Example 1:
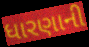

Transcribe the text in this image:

ધારણાની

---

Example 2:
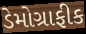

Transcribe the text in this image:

ડેમોગ્રાફીક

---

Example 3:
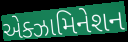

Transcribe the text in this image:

એક્ઝામિનેશન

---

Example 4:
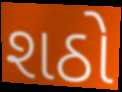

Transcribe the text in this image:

શઠો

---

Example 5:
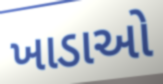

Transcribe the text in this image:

ખાડાઓ